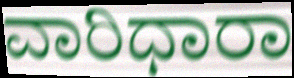
ವಾರಿಧಾರಾ